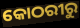
କୋଠରୀରୁ